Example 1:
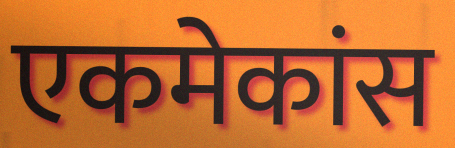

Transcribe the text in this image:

एकमेकांस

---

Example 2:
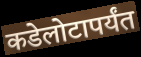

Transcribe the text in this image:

कडेलोटापर्यंत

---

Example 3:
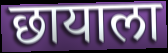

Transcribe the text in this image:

छायाला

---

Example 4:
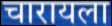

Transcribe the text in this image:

चारायला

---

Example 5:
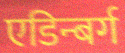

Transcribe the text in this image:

एडिन्बर्ग